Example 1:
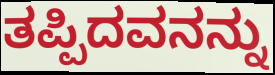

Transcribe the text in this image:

ತಪ್ಪಿದವನನ್ನು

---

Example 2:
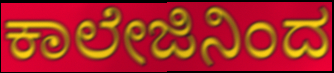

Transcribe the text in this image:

ಕಾಲೇಜಿನಿಂದ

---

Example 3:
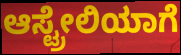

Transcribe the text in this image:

ಆಸ್ಟ್ರೇಲಿಯಾಗೆ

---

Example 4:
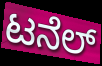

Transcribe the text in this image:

ಟನೆಲ್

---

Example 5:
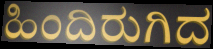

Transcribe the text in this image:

ಹಿಂದಿರುಗಿದ